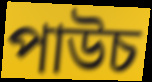
পাউচ